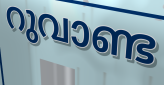
റുവാണ്ട